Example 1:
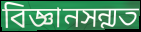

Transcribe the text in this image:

বিজ্ঞানসন্মত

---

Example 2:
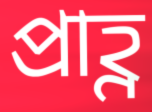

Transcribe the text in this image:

প্ৰাহ্ণ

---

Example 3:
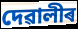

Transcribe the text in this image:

দেৱালীৰ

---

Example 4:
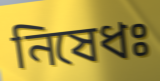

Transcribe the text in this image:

নিষেধঃ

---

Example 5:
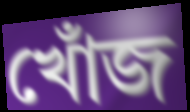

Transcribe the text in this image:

খোঁজ